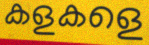
കളകളെ